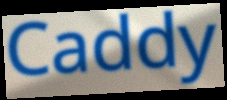
Caddy